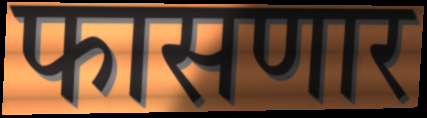
फासणार